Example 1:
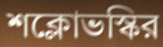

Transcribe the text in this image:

শক্লোভস্কির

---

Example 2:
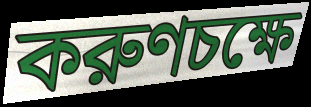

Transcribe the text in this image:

করুণচক্ষে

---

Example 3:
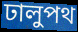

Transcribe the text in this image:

ঢালুপথ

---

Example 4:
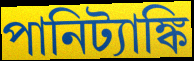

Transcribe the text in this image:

পানিট্যাঙ্কি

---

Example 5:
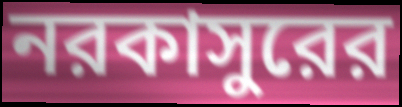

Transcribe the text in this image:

নরকাসুরের